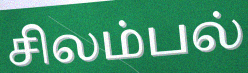
சிலம்பல்